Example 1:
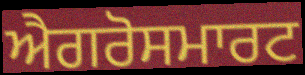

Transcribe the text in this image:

ਐਗਰੋਸਮਾਰਟ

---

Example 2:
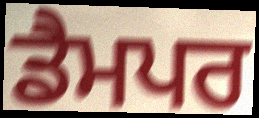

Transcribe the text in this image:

ਡੈਮਪਰ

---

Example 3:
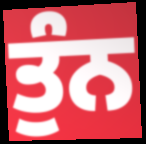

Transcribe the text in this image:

ਤੁੰਨ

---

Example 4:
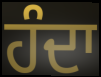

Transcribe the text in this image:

ਹੰਦਾ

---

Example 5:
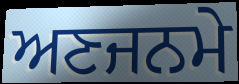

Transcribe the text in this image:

ਅਣਜਨਮੇ